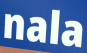
nala